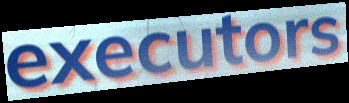
executors